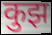
कुझ